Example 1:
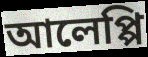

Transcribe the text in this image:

আলেপ্পি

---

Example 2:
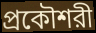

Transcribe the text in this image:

প্রকৌশরী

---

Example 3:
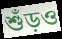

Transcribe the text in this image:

শুঁড়ও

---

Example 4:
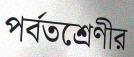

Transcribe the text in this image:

পর্বতশ্রেণীর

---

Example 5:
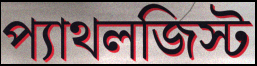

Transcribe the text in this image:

প্যাথলজিস্ট